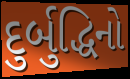
દુર્બુદ્ધિનો